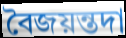
বৈজয়ন্তদা